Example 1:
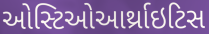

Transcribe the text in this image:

ઓસ્ટિઓઆર્થ્રાઇટિસ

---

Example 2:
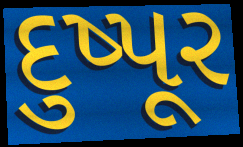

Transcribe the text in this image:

દુષ્પૂર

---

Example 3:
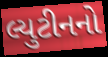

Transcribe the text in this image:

લ્યુટીનનો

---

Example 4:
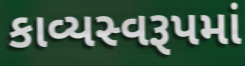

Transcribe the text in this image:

કાવ્યસ્વરૂપમાં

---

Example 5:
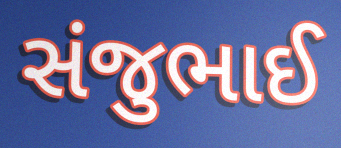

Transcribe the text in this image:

સંજુભાઈ